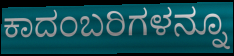
ಕಾದಂಬರಿಗಳನ್ನೂ